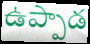
ఉప్పాడ